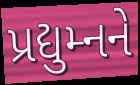
પ્રદ્યુમ્નને